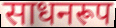
साधनरूप